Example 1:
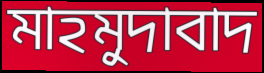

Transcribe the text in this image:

মাহমুদাবাদ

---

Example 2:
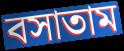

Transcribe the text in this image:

বসাতাম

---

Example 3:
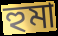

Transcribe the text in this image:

হুমা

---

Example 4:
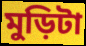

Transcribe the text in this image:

মুড়িটা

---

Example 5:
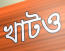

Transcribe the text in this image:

খাটও